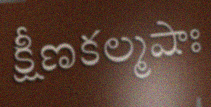
క్షీణకల్మషాః